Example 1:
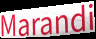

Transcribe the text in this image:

Marandi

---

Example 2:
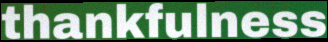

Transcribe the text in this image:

thankfulness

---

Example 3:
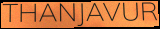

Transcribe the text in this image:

THANJAVUR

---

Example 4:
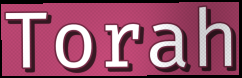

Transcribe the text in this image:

Torah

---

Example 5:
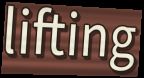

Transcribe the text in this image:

lifting